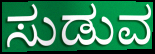
ಸುಡುವ